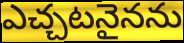
ఎచ్చటనైనను